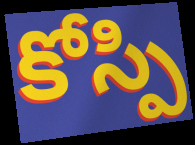
కోస్పి